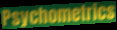
Psychometrics